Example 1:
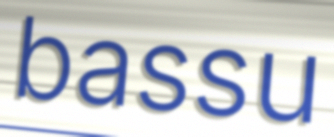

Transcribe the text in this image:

bassu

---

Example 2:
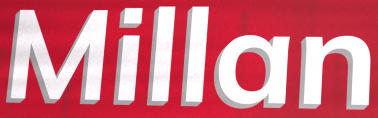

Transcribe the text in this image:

Millan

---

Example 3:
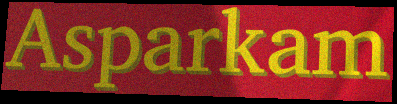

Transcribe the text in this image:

Asparkam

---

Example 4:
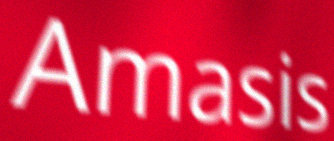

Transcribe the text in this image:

Amasis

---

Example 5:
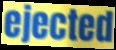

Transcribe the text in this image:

ejected